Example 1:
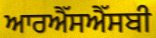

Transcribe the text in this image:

ਆਰਐੱਸਐੱਸਬੀ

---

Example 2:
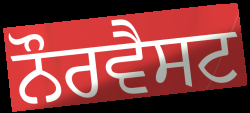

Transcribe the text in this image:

ਨੌਰਵੈਸਟ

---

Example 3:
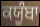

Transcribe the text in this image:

ਕਯੂੰਬਾ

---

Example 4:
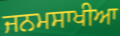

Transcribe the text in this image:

ਜਨਮਸਾਖੀਆ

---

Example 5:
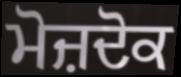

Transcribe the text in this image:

ਮੋਜ਼ਦੋਕ